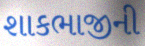
શાકભાજીની